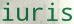
iuris